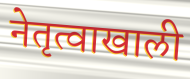
नेतृत्वाखाली